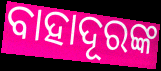
ବାହାଦୂରଙ୍କ